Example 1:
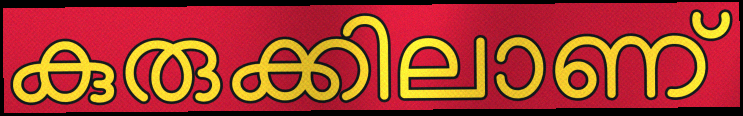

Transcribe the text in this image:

കുരുക്കിലാണ്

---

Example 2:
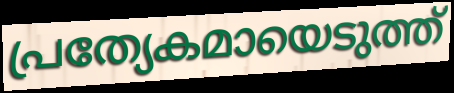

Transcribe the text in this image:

പ്രത്യേകമായെടുത്ത്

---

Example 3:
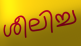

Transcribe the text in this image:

ശീലിച്ച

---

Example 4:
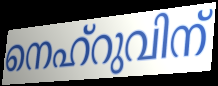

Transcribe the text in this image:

നെഹ്റുവിന്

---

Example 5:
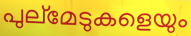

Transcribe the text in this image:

പുല്മേടുകളെയും